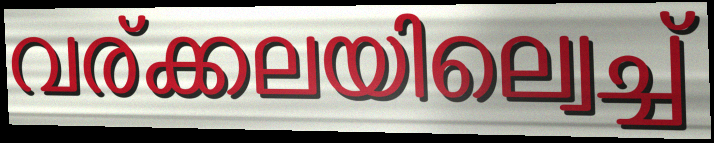
വര്ക്കലയില്വെച്ച്